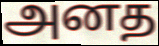
அனத